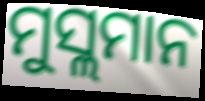
ମୁସ୍ଲମାନ